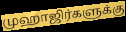
முஹாஜிர்களுக்கு